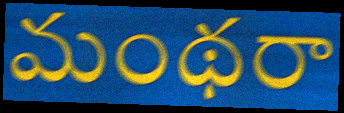
మంథరా